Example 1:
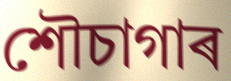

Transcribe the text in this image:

শৌচাগাৰ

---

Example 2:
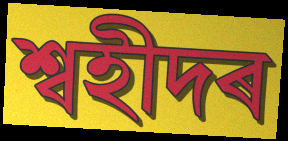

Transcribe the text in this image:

শ্বহীদৰ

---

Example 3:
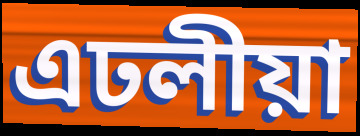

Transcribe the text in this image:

এঢলীয়া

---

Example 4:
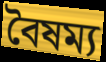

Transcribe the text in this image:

বৈষম্য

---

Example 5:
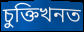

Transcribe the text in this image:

চুক্তিখনত